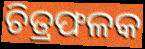
ଚିତ୍ରଫଳକ